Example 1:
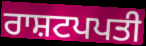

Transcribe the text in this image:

ਰਾਸ਼ਟਪਪਤੀ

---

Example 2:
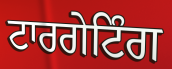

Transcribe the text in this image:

ਟਾਰਗੇਟਿੰਗ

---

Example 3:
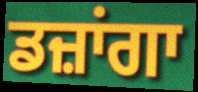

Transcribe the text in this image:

ਡਜ਼ਾਂਗਾ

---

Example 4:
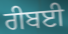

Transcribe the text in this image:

ਰੀਬਈ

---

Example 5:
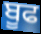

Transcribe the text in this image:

ਬੂਫ